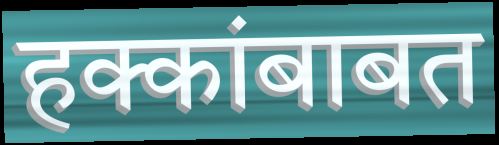
हक्कांबाबत